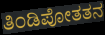
ತಿಂಡಿಪೋತತನ